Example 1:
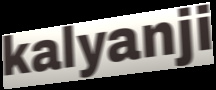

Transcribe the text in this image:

kalyanji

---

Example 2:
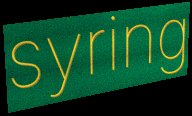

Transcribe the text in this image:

syring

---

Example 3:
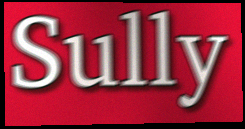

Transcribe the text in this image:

Sully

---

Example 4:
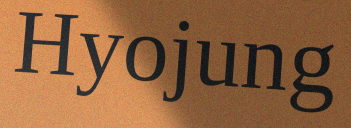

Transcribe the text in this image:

Hyojung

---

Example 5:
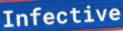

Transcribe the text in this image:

Infective